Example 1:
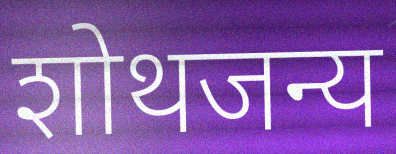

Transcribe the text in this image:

शोथजन्य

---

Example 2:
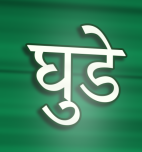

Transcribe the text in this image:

घुडे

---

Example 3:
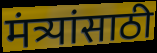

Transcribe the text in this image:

मंत्र्यांसाठी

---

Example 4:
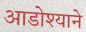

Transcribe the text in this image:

आडोश्याने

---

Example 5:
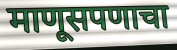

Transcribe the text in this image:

माणूसपणाचा